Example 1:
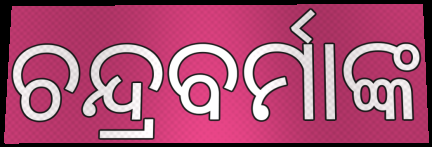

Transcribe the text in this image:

ଚନ୍ଦ୍ରବର୍ମାଙ୍କ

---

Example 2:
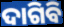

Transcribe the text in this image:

ଦାଗିବି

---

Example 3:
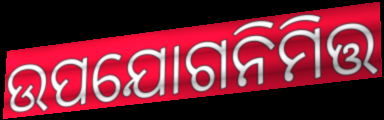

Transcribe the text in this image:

ଉପଯୋଗନିମିତ୍ତ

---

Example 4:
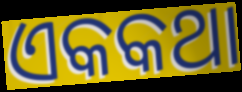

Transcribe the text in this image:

ଏକକଥା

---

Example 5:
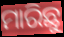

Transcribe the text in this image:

ମାରିଛୁ